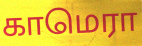
காமெரா